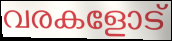
വരകളോട്